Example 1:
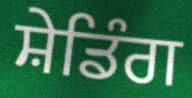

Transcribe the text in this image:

ਸ਼ੇਡਿੰਗ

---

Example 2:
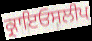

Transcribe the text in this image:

ਕ੍ਰਾਇਓਸਲੀਪ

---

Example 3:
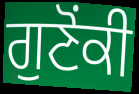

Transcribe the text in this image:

ਗੁਣੋਂਕੀ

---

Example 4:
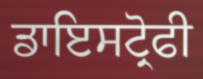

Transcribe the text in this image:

ਡਾਇਸਟ੍ਰੋਫੀ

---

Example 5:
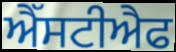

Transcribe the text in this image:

ਐੱਸਟੀਐਫ